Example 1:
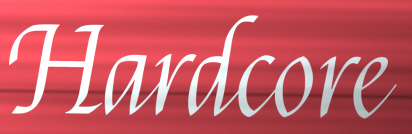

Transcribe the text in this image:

Hardcore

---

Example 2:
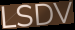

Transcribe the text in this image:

LSDV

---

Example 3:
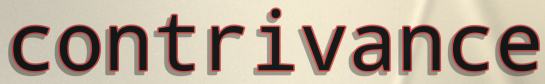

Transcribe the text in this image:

contrivance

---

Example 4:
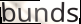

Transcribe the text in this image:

bunds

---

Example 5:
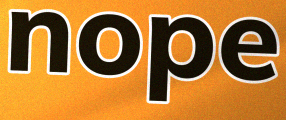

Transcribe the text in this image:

nope